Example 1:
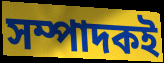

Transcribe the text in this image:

সম্পাদকই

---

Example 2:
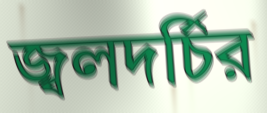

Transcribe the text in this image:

জ্বলদর্চির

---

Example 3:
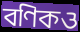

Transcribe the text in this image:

বণিকও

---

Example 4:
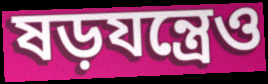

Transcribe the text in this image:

ষড়যন্ত্রেও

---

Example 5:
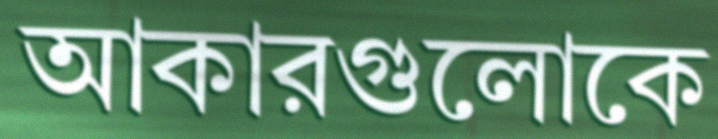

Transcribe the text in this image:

আকারগুলোকে